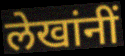
लेखांनीं